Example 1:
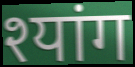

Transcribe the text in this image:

श्यांग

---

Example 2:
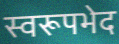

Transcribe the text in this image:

स्वरूपभेद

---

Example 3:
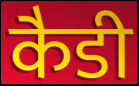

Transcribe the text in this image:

कैडी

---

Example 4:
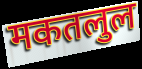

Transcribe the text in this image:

मकतलुल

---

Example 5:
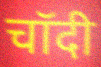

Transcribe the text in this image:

चॉदी